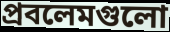
প্রবলেমগুলো